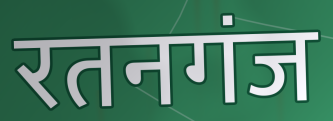
रतनगंज